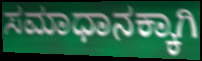
ಸಮಾಧಾನಕ್ಕಾಗಿ